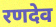
रणदेव